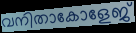
വനിതാകോളേജ്